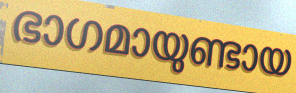
ഭാഗമായുണ്ടായ